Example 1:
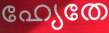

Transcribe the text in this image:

ഹ്യേതേ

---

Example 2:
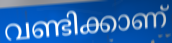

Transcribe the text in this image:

വണ്ടിക്കാണ്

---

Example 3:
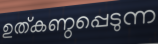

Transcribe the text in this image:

ഉത്കണ്ഠപ്പെടുന്ന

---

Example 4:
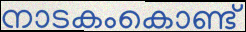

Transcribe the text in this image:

നാടകംകൊണ്ട്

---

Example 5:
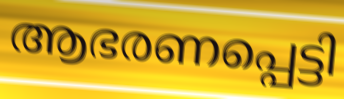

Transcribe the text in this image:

ആഭരണപ്പെട്ടി